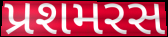
પ્રશમરસ